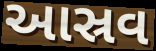
આસ્રવ